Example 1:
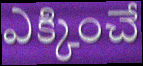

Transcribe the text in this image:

ఎక్కించే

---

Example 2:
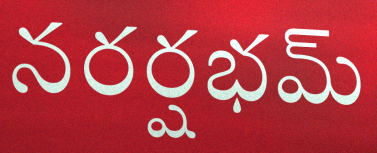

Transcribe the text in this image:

నరర్షభమ్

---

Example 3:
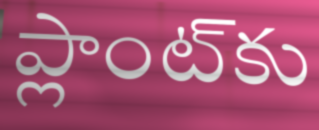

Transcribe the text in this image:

ప్లాంట్‌కు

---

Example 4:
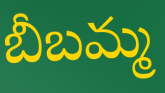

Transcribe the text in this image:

బీబమ్మ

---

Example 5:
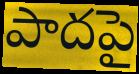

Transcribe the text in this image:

పాదపై